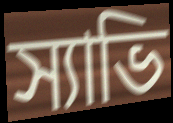
স্যাভি